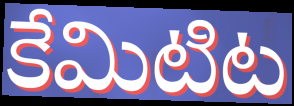
కేమిటిట